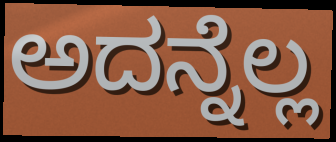
ಅದನ್ನೆಲ್ಲ